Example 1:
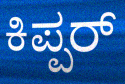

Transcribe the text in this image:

ಕಿಪ್ಪರ್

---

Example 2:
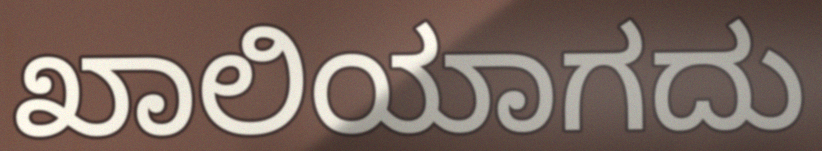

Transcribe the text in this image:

ಖಾಲಿಯಾಗದು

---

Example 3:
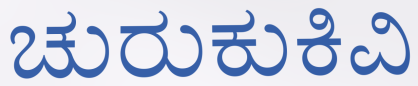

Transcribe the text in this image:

ಚುರುಕುಕಿವಿ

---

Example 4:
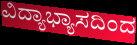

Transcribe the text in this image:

ವಿದ್ಯಾಭ್ಯಾಸದಿಂದ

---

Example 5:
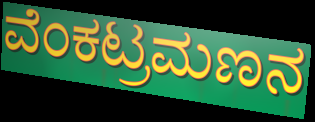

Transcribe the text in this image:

ವೆಂಕಟ್ರಮಣನ